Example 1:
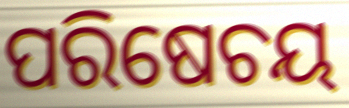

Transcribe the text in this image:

ପରିଷେଚୟ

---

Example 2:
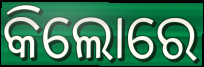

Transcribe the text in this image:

କିଲୋରେ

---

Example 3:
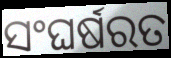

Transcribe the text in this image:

ସଂଘର୍ଷରତ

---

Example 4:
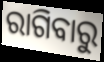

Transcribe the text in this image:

ରାଗିବାରୁ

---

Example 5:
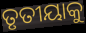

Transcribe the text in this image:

ତୃତୀୟାକୁ